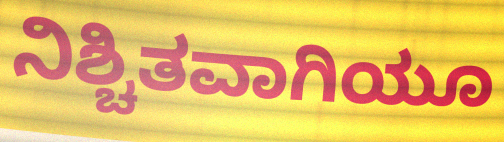
ನಿಶ್ಚಿತವಾಗಿಯೂ